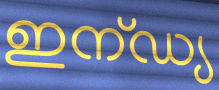
ഇന്ഡ്യ